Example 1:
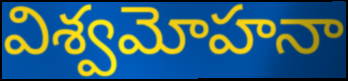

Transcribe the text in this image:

విశ్వమోహనా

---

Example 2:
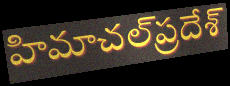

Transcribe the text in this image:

హిమాచల్‌ప్రదేశ్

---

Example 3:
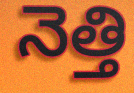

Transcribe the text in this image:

నెత్తి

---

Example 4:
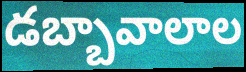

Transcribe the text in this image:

డబ్బావాలాల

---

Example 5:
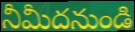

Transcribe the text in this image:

నీమీదనుండి